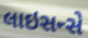
લાઇસન્સે